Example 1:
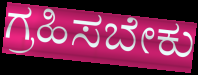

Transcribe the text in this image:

ಗ್ರಹಿಸಬೇಕು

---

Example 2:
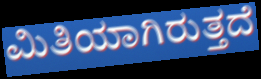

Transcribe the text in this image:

ಮಿತಿಯಾಗಿರುತ್ತದೆ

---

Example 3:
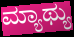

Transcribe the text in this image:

ಮ್ಯಾಥ್ಯು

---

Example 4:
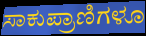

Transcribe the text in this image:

ಸಾಕುಪ್ರಾಣಿಗಳೂ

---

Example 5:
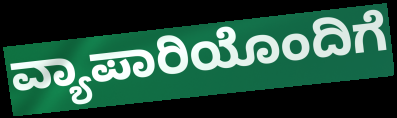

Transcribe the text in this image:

ವ್ಯಾಪಾರಿಯೊಂದಿಗೆ